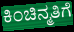
ಕಿಂಚಿನ್ಮತಿಗೆ